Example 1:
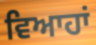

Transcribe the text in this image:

ਵਿਆਹਾਂ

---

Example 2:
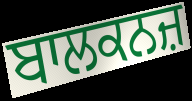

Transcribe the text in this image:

ਬਾਲਕਨਜ਼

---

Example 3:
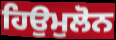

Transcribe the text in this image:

ਹਿਉਮੁਲੋਨ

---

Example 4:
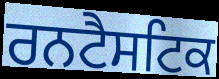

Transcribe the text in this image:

ਰਨਟੈਸਟਿਕ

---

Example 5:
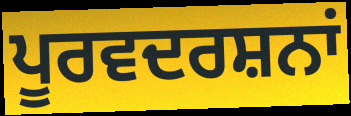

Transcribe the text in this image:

ਪੂਰਵਦਰਸ਼ਨਾਂ